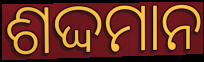
ଶଦ୍ଦମାନ